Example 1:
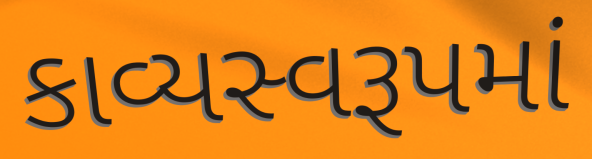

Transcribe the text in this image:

કાવ્યસ્વરૂપમાં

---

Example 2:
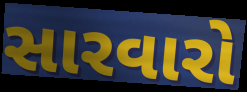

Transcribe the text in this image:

સારવારો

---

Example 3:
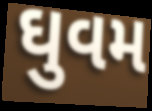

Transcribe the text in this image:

ઘુવમ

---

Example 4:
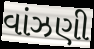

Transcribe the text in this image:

વાંઝણી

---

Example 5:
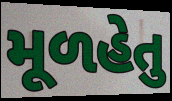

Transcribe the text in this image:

મૂળહેતુ